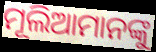
ମୂଲିଆମାନଙ୍କୁ